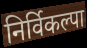
निर्विकल्पा